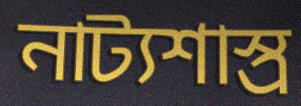
নাট্যশাস্ত্ৰ